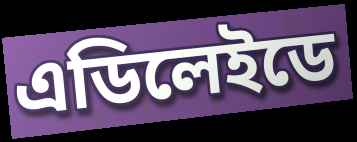
এডিলেইডে